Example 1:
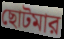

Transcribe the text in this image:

ছোটমার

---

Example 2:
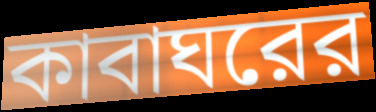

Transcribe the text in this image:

কাবাঘরের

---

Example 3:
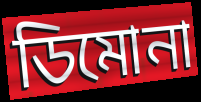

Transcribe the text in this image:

ডিমোনা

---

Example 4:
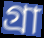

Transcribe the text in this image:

গ্রা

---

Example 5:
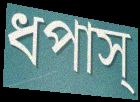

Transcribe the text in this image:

ধপাস্